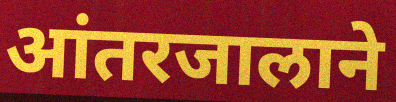
आंतरजालाने